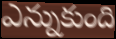
ఎన్నుకుంది